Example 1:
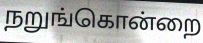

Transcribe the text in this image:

நறுங்கொன்றை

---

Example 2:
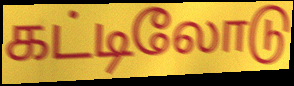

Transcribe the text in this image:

கட்டிலோடு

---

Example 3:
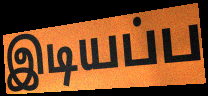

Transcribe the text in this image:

இடியப்ப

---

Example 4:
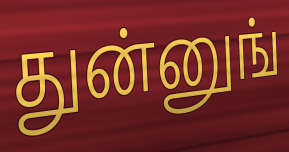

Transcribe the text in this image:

துன்னுங்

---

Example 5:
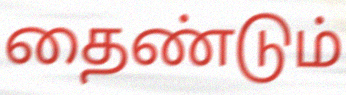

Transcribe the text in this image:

தைண்டும்